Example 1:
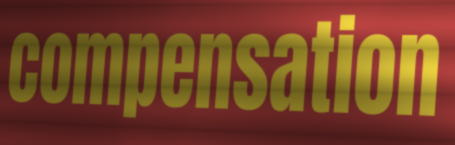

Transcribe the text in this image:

compensation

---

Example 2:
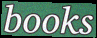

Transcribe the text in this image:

books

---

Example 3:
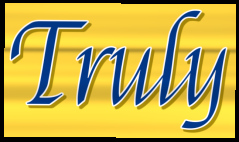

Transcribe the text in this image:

Truly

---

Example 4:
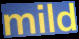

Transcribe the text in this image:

mild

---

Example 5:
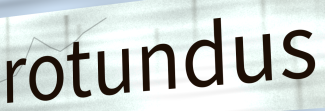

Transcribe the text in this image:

rotundus